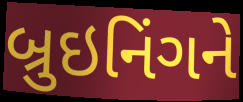
બ્રુઇનિંગને